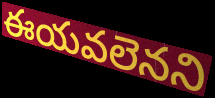
ఈయవలెనని